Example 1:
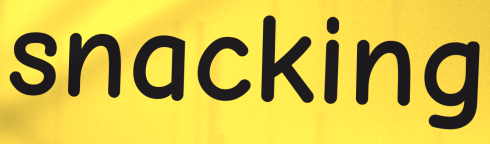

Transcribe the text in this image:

snacking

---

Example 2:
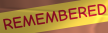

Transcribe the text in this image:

REMEMBERED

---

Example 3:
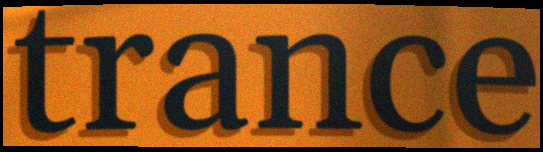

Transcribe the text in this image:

trance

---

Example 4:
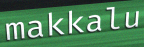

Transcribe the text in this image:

makkalu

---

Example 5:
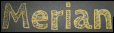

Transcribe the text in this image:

Merian